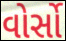
વોર્સો